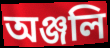
অঞ্জলি